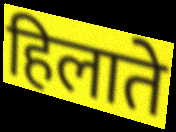
हिलाते